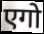
एगो